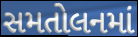
સમતોલનમાં